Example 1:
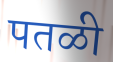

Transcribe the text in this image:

पतळी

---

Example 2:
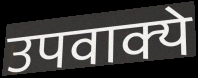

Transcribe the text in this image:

उपवाक्ये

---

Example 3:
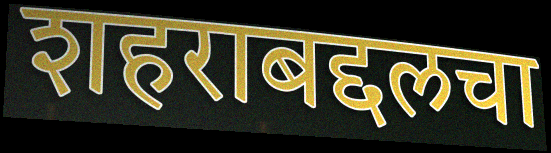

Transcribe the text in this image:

शहराबद्दलचा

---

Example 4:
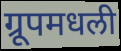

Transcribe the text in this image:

ग्रूपमधली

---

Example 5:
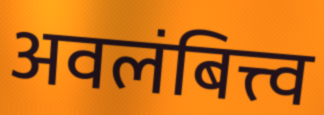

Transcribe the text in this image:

अवलंबित्त्व